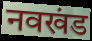
नवखंड